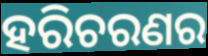
ହରିଚରଣର